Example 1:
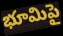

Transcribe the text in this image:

భూమిపై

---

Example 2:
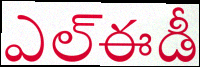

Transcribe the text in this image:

ఎల్ఈడీ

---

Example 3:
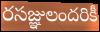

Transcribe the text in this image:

రసజ్ఞులందరికీ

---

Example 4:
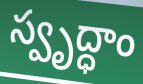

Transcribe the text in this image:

స్వృద్ధాం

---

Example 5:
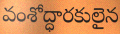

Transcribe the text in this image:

వంశోద్ధారకులైన